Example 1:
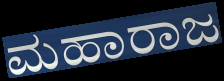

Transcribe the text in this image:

ಮಹಾರಾಜ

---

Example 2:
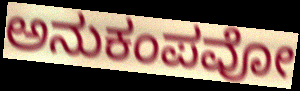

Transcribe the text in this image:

ಅನುಕಂಪವೋ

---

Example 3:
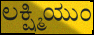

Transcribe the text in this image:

ಲಕ್ಷ್ಮಿಯುಂ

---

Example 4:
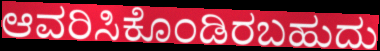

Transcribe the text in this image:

ಆವರಿಸಿಕೊಂಡಿರಬಹುದು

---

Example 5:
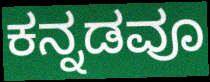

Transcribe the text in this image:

ಕನ್ನಡವೂ